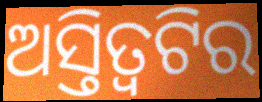
ଅସ୍ତିତ୍ୱଟିର